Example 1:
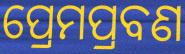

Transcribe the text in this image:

ପ୍ରେମପ୍ରବଣ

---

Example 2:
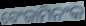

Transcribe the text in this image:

ବେଂଜାମିନଂକ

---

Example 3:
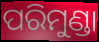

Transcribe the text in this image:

ପରିମୁଣ୍ଡା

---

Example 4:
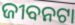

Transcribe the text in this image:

ଜୀବନଟା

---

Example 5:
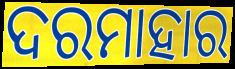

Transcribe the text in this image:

ଦରମାହାର